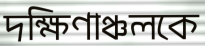
দক্ষিণাঞ্চলকে